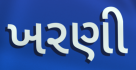
ખરણી